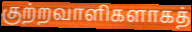
குற்றவாளிகளாகத்